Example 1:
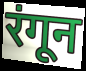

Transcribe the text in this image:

रंगून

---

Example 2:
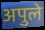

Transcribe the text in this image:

अपुले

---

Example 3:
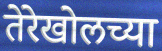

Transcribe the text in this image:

तेरेखोलच्या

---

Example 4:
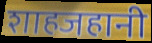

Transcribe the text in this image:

शाहजहानी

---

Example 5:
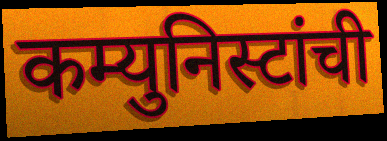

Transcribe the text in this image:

कम्युनिस्टांची